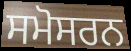
ਸਮੋਸਰਨ